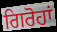
ਗਿਰੋਹਾਂ